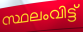
സ്ഥലംവിട്ട്